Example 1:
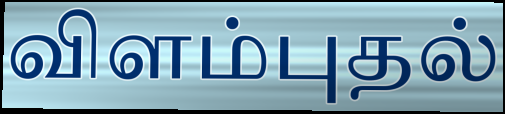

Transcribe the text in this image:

விளம்புதல்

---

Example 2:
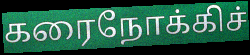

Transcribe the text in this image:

கரைநோக்கிச்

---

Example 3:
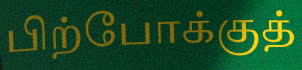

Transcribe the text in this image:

பிற்போக்குத்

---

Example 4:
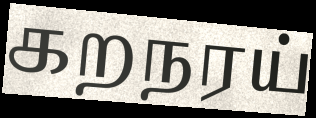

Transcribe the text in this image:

கறநரய்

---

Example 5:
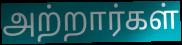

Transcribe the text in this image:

அற்றார்கள்